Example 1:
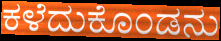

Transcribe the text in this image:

ಕಳೆದುಕೊಂಡನು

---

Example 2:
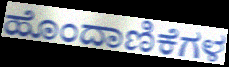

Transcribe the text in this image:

ಹೊಂದಾಣಿಕೆಗಳ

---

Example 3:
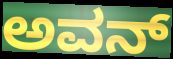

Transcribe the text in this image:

ಅವನ್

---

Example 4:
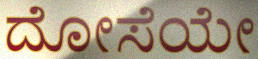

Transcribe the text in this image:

ದೋಸೆಯೇ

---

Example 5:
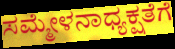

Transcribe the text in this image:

ಸಮ್ಮೇಳನಾಧ್ಯಕ್ಷತೆಗೆ